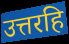
उत्तरहि